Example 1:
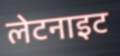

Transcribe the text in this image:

लेटनाइट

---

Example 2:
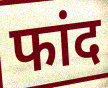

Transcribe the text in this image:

फांद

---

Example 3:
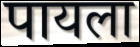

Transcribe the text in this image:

पायला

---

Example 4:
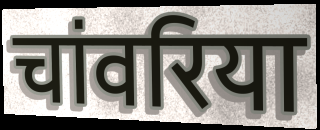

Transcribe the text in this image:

चांवरिया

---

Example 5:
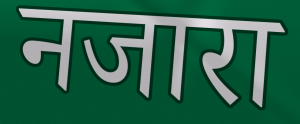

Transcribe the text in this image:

नजारा